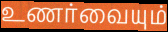
உணர்வையும்